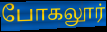
போகலூர்